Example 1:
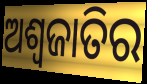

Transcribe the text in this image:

ଅଶ୍ୱଜାତିର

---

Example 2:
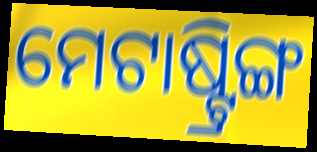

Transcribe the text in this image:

ମେଟାଷ୍ଟ୍ରିଙ୍ଗ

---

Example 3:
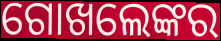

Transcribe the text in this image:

ଗୋଖଲେଙ୍କର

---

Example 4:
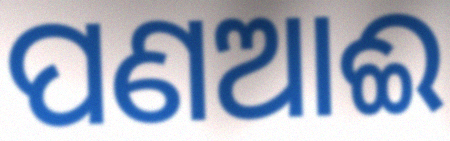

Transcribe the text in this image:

ପଣଆଈ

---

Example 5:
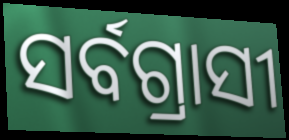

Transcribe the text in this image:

ସର୍ବଗ୍ରାସୀ